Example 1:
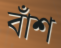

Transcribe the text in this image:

বাঁশ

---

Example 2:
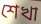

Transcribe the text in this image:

শেখা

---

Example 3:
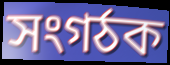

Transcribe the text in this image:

সংগঠক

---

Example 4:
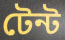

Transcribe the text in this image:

টেন্ট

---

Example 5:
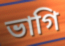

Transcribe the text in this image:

ভাগি